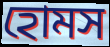
হোমস